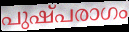
പുഷ്പരാഗം